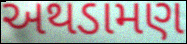
અથડામણ